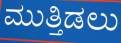
ಮುತ್ತಿಡಲು